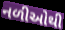
નળીઓથી